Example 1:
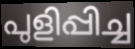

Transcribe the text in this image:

പുളിപ്പിച്ച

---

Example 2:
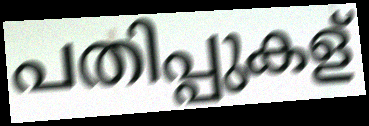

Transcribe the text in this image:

പതിപ്പുകള്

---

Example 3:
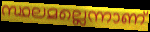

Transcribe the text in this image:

സ്ഥലമല്ലെന്നാണ്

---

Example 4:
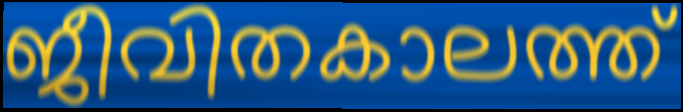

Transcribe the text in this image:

ജീവിതകാലത്ത്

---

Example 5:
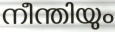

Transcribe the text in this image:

നീന്തിയും